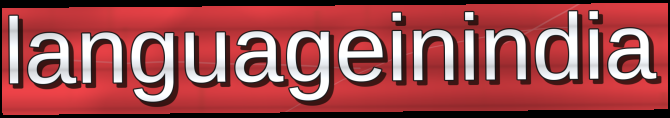
languageinindia